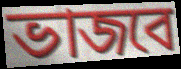
ভাজবে